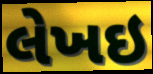
લેખઇ